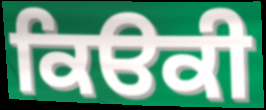
ਕਿੳਕੀ